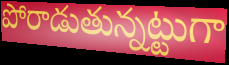
పోరాడుతున్నట్టుగా